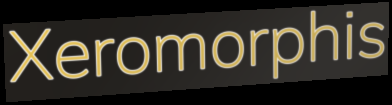
Xeromorphis